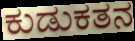
ಕುಡುಕತನ